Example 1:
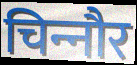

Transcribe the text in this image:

चिन्‍नौर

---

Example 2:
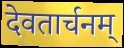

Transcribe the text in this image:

देवतार्चनम्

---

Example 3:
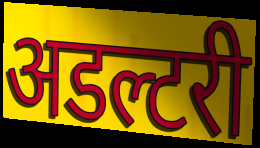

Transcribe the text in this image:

अडल्टरी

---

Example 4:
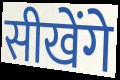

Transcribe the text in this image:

सीखेंगे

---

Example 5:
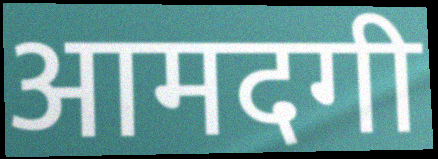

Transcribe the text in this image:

आमदगी